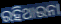
ରହିଥାଉନା